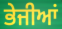
ਭੇਜੀਆਂ